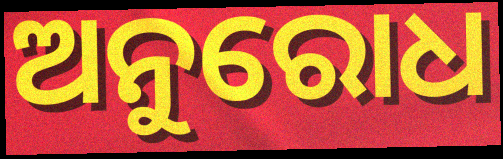
ଅନୁରୋଧ